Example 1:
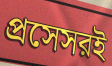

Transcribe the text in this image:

প্রসেসরই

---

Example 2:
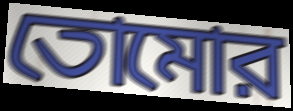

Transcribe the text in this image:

তোমোর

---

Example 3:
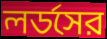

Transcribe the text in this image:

লর্ডসের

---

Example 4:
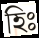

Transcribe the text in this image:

হিঃ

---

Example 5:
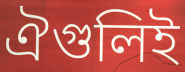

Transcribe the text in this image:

ঐগুলিই